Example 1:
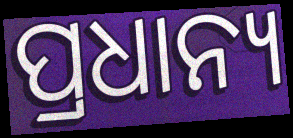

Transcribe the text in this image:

ପ୍ରଧାନ୍ୟ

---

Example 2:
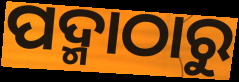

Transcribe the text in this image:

ପଦ୍ମାଠାରୁ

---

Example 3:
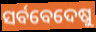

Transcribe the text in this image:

ସର୍ବବେଦେଷୁ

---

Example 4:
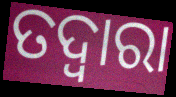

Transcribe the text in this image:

ତଦ୍ବାରା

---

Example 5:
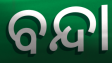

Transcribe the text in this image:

ବନ୍ଦା